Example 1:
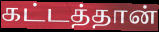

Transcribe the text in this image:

கட்டத்தான்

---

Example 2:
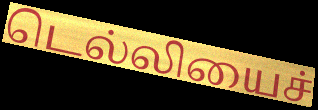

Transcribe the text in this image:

டெல்லியைச்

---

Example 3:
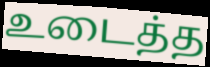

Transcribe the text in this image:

உடைத்த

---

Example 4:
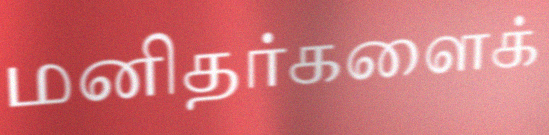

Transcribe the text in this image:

மனிதர்களைக்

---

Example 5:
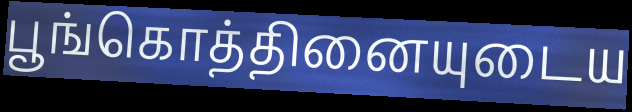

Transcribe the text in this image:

பூங்கொத்தினையுடைய